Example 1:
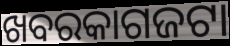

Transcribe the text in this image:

ଖବରକାଗଜଟା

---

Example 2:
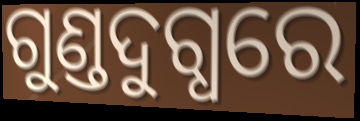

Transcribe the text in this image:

ଗୁଣ୍ଡଦୁଗ୍ଧରେ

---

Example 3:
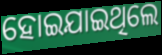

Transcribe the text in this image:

ହୋଇଯାଇଥିଲେ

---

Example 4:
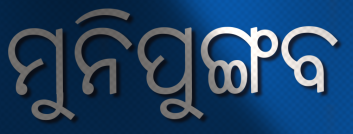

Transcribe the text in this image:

ମୁନିପୁଙ୍ଗବ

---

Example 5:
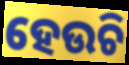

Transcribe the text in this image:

ହେଉଚି